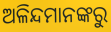
ଅଳିନ୍ଦମାନଙ୍କରୁ